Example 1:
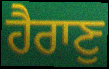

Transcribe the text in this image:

ਹੈਰਾਣੁ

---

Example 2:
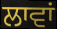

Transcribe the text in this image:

ਲਾਵਾਂ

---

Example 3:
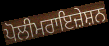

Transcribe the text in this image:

ਪੋਲੀਮਰਾਇਜ਼ੇਸ਼ਨ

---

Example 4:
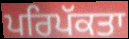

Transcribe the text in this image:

ਪਰਿਪੱਕਤਾ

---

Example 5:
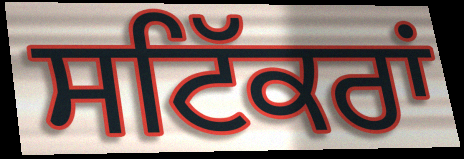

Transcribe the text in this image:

ਸਟਿੱਕਰਾਂ